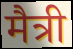
मैत्री